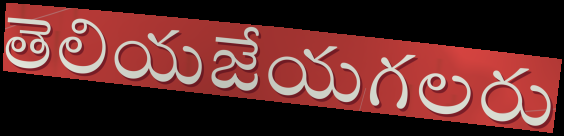
తెలియజేయగలరు